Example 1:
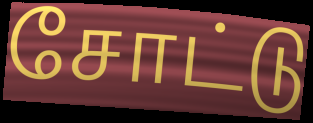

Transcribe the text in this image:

சோட்டு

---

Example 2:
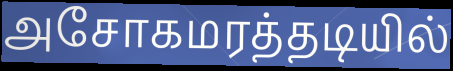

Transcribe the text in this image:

அசோகமரத்தடியில்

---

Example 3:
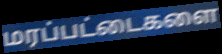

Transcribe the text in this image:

மரப்பட்டைகளை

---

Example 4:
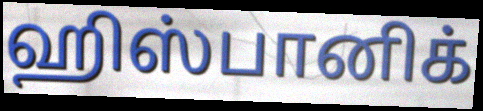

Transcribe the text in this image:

ஹிஸ்பானிக்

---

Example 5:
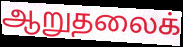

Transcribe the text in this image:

ஆறுதலைக்